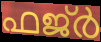
ഫജ്ർ